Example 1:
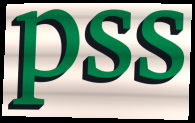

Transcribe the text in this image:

pss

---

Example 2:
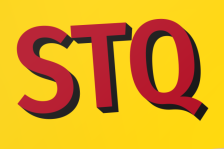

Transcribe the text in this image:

STQ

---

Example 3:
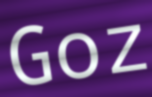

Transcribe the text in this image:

Goz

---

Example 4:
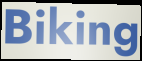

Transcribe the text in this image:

Biking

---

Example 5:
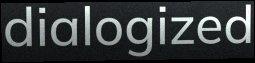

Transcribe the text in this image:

dialogized